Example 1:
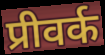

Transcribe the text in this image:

प्रीवर्क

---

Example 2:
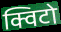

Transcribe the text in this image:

क्विटो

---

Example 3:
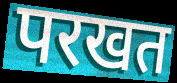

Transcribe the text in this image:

परखत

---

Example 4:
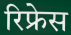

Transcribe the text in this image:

रिफ्रेस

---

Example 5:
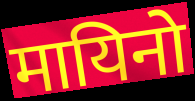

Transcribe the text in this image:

मायिनो